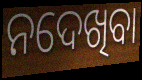
ନଦେଖିବା